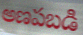
అణపబడి